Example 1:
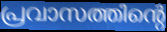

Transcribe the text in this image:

പ്രവാസത്തിന്റെ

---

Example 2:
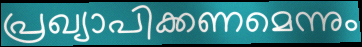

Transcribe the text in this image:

പ്രഖ്യാപിക്കണമെന്നും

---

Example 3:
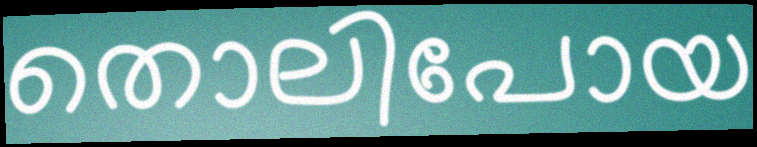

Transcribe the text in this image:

തൊലിപോയ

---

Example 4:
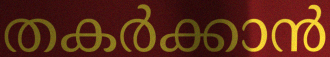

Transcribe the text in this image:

തകർക്കാൻ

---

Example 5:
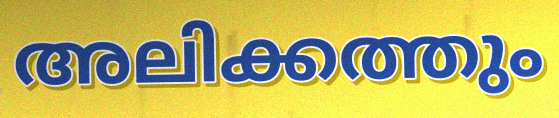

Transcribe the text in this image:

അലിക്കത്തും